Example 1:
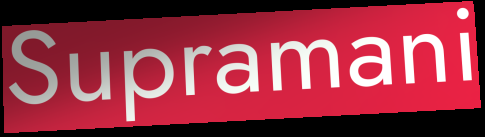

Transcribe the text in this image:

Supramani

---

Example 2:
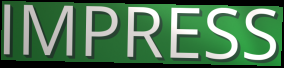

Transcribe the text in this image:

IMPRESS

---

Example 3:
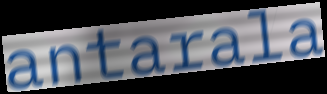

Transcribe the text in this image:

antarala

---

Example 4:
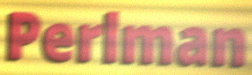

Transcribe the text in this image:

Perlman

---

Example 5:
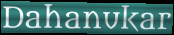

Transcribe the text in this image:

Dahanukar